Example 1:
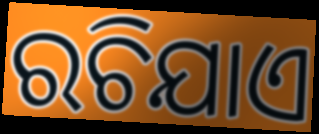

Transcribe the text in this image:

ରଚିଯାଏ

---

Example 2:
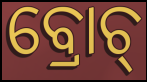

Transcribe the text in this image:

ବ୍ରୋଚ୍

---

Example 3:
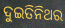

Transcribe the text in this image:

ଦୁଇତିନିଥର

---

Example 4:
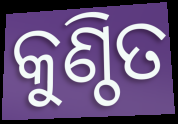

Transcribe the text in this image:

କୁଣ୍ଠିତ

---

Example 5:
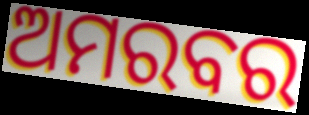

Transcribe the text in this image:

ଅମରବର